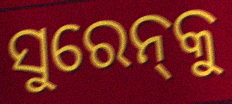
ସୁରେନ୍‌କୁ